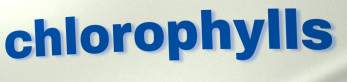
chlorophylls